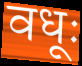
वधूः